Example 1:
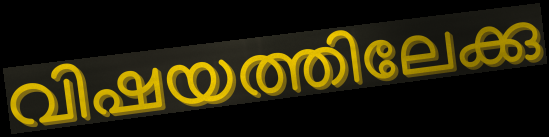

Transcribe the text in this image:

വിഷയത്തിലേക്കു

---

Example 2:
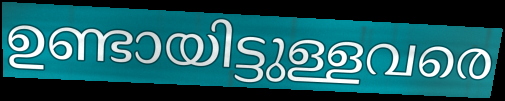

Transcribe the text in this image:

ഉണ്ടായിട്ടുള്ളവരെ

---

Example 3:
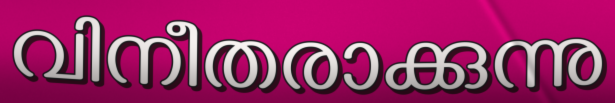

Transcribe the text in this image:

വിനീതരാക്കുന്നു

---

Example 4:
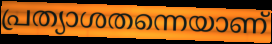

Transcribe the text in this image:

പ്രത്യാശതന്നെയാണ്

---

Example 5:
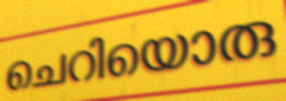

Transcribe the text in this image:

ചെറിയൊരു